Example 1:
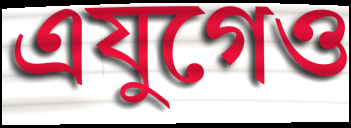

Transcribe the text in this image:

এযুগেও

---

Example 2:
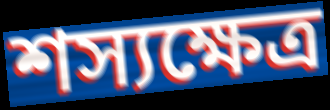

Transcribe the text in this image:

শস্যক্ষেত্র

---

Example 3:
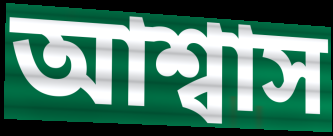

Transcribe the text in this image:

আশ্বাস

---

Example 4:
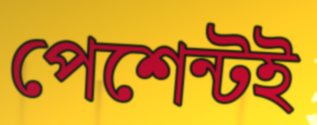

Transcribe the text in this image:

পেশেন্টই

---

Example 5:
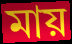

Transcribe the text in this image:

মায়